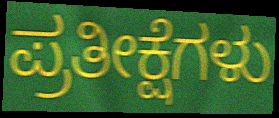
ಪ್ರತೀಕ್ಷೆಗಳು